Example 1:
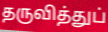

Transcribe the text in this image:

தருவித்துப்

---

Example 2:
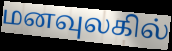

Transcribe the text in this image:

மனவுலகில்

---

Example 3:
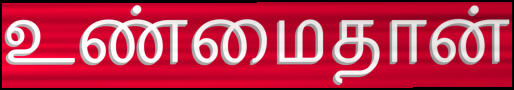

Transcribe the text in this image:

உண்மைதான்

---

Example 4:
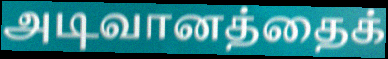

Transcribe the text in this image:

அடிவானத்தைக்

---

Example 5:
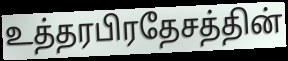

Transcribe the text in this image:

உத்தரபிரதேசத்தின்